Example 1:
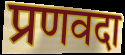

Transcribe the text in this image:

प्रणवदा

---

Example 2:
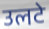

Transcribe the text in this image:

उलटे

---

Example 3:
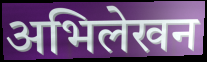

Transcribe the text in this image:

अभिलेखन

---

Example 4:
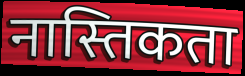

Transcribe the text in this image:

नास्तिकता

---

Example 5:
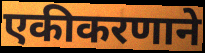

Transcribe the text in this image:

एकीकरणाने